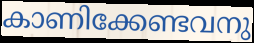
കാണിക്കേണ്ടവനു